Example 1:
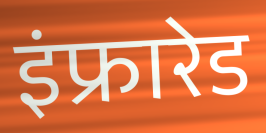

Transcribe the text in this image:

इंफ्रारेड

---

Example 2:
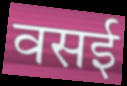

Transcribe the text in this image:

वसई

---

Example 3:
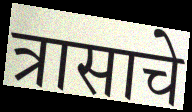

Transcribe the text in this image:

त्रासाचे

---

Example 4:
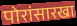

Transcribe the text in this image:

पोरांसारखा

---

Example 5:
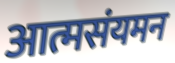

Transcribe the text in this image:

आत्मसंयमन